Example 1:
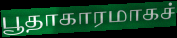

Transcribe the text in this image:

பூதாகாரமாகச்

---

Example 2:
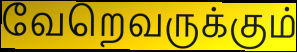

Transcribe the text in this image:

வேறெவருக்கும்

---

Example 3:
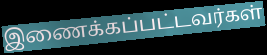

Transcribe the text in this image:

இணைக்கப்பட்டவர்கள்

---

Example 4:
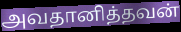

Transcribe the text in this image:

அவதானித்தவன்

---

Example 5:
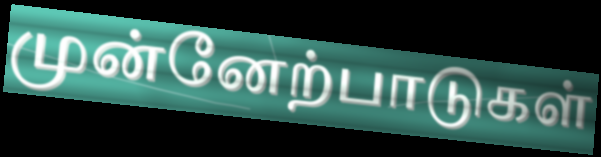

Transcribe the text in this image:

முன்னேற்பாடுகள்